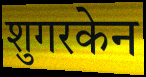
शुगरकेन